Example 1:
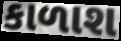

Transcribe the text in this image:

કાળાશ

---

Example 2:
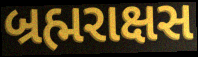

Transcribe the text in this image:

બ્રહ્મરાક્ષસ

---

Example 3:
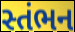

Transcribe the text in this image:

સ્તંભન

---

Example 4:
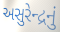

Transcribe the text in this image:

અસુરેન્દ્રનું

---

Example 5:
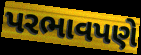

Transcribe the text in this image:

પરભાવપણે